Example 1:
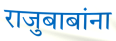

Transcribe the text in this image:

राजुबाबांना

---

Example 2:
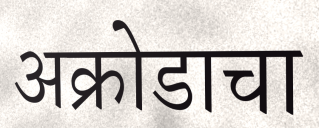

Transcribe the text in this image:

अक्रोडाचा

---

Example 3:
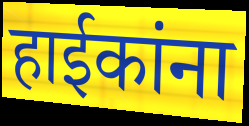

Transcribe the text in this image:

हाईकांना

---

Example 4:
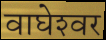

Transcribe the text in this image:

वाघेश्वर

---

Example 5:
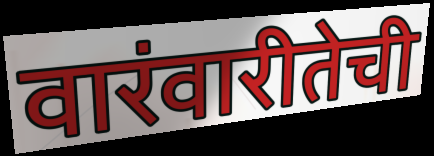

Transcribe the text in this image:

वारंवारीतेची